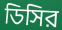
ডিসির